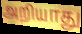
அறியாது